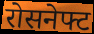
रोसनेफ्ट